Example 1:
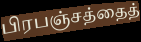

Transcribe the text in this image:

பிரபஞ்சத்தைத்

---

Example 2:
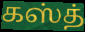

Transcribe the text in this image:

கஸ்த்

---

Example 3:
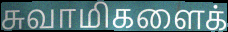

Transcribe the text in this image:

சுவாமிகளைக்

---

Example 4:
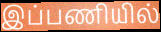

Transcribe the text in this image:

இப்பணியில்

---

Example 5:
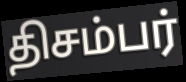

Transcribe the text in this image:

திசம்பர்